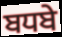
ਬਧਬੇ